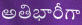
అతిభారీగా